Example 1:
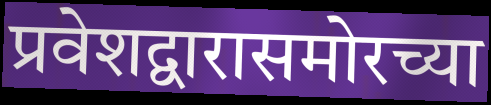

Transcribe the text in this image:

प्रवेशद्वारासमोरच्या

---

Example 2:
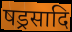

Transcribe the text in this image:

षड्रसादि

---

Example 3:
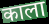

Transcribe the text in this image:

काला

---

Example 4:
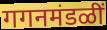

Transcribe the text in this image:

गगनमंडळीं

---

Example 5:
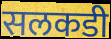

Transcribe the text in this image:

सलकडी